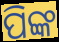
ପିଙ୍କ